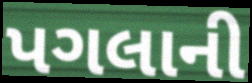
પગલાની